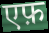
एफ़